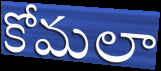
కోమలా